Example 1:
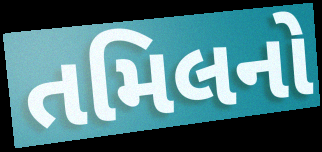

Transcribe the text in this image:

તમિલનો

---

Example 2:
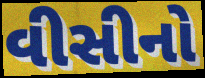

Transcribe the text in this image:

વીસીનો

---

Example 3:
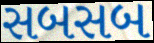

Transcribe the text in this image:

સબસબ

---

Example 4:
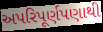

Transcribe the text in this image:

અપરિપૂર્ણપણાથી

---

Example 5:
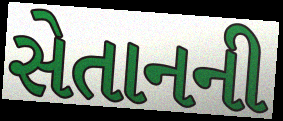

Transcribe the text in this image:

સેતાનની